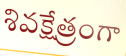
శివక్షేత్రంగా